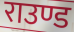
राउण्ड